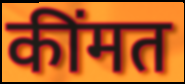
कींमत